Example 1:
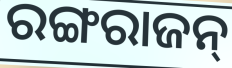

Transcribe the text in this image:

ରଙ୍ଗରାଜନ୍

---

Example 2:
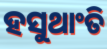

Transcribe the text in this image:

ହସୁଥାଂତି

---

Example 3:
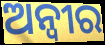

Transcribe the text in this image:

ଅନ୍ୱୀର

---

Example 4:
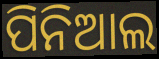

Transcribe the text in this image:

ପିନିଆଲ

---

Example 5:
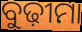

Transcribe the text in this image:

ବୁଢ଼ୀମା